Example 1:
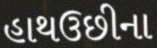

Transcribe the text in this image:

હાથઉછીના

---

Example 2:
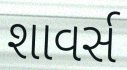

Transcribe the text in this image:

શાવર્સ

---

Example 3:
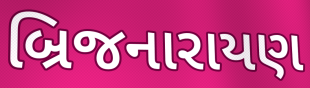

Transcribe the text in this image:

બ્રિજનારાયણ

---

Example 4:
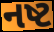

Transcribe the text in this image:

નષ્ટ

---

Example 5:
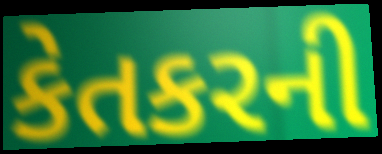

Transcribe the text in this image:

કેતકરની